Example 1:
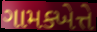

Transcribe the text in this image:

ગામક્ખેત્તે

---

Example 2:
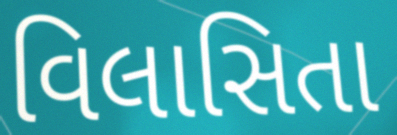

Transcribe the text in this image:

વિલાસિતા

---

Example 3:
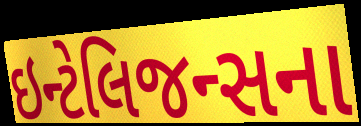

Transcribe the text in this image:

ઇન્ટેલિજન્સના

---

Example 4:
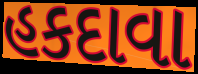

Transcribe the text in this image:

હકદાવા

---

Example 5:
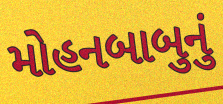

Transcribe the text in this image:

મોહનબાબુનું